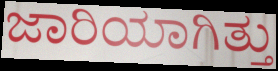
ಜಾರಿಯಾಗಿತ್ತು